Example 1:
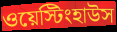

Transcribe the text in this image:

ওয়েস্টিংহাউস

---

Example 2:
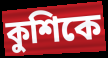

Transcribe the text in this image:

কুশিকে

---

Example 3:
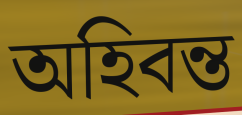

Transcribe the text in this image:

অহিবন্ত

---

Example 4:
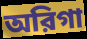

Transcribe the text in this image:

অরিগা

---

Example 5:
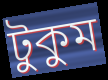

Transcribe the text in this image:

টুকুম